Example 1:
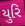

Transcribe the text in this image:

યુરિ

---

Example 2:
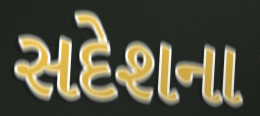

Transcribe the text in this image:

સદેશના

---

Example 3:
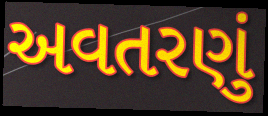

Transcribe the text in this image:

અવતરણું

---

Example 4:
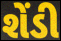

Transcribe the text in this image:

શેંડી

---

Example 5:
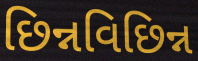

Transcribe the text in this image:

છિન્નવિછિન્ન